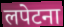
लपेटना